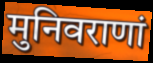
मुनिवराणां